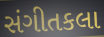
સંગીતકલા